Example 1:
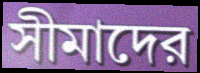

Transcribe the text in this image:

সীমাদের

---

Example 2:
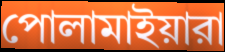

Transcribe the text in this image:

পোলামাইয়ারা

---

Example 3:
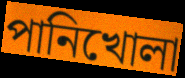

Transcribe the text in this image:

পানিখোলা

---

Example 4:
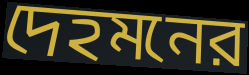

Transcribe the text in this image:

দেহমনের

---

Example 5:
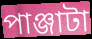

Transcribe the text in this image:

পাঞ্জাটা